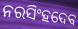
ନରସିଂହଦେବ